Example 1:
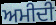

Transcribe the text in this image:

ਅਮੀਦੀ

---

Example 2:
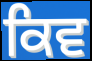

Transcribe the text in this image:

ਕਿਵ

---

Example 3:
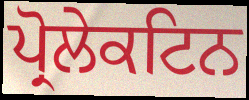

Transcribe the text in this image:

ਪ੍ਰੋਲੇਕਟਿਨ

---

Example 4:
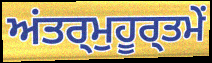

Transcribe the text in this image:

ਅਂਤਰ੍ਮੁਹੂਰ੍ਤਮੇਂ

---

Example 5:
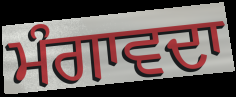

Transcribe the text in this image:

ਮੰਗਾਵਦਾ